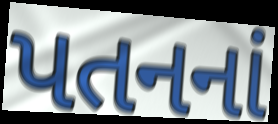
પતનનાં